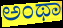
ಅಂಥಾ